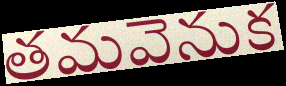
తమవెనుక